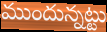
ముందున్నట్టు